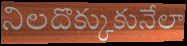
నిలదొక్కుకునేలా